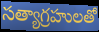
సత్యాగ్రహులతో